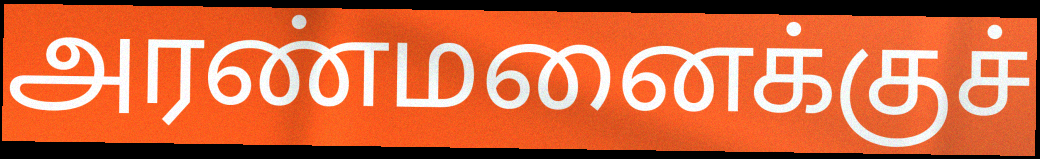
அரண்மனைக்குச்